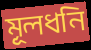
মূলধনি